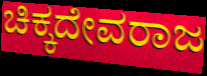
ಚಿಕ್ಕದೇವರಾಜ